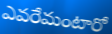
ఎవరేమంటారో